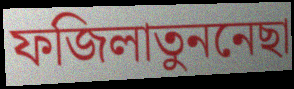
ফজিলাতুননেছা